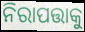
ନିରାପତ୍ତାକୁ